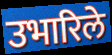
उभारिले